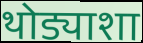
थोड्याशा